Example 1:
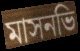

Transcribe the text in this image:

মাসনভি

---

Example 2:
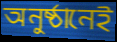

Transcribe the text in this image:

অনুষ্ঠানেই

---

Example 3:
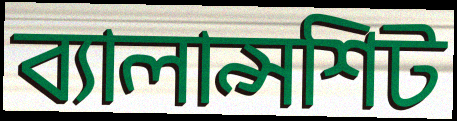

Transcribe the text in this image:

ব্যালান্সশিট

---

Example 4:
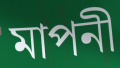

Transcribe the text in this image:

মাপনী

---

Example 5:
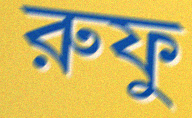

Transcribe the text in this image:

রুফু